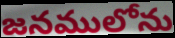
జనములోను